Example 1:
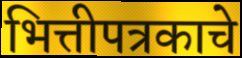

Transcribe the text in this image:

भित्तीपत्रकाचे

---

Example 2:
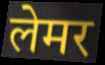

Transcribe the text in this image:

लेमर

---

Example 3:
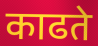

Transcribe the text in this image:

काढते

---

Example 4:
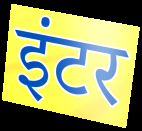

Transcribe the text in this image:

इंटर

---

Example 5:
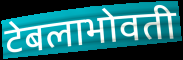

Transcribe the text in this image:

टेबलाभोवती